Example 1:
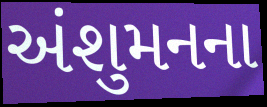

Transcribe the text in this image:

અંશુમનના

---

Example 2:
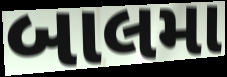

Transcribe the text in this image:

બાલમા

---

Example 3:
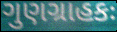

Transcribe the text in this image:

ગુણગ્રાહકઃ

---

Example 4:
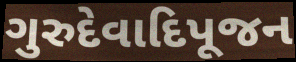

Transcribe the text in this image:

ગુરુદેવાદિપૂજન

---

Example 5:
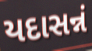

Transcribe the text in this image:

યદાસન્નં